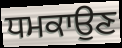
ਧਮਕਾਉਣ